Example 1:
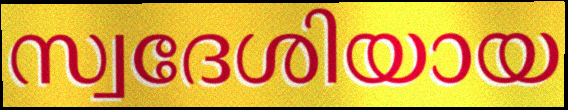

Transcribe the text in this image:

സ്വദേശിയായ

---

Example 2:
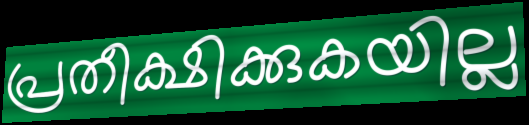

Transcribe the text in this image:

പ്രതീക്ഷിക്കുകയില്ല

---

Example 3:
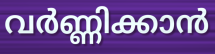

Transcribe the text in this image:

വർണ്ണിക്കാൻ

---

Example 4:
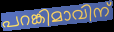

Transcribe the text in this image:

പറങ്കിമാവിന്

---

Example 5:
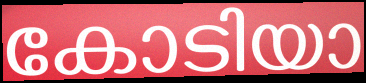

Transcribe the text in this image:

കോടിയാ